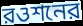
রওশনের